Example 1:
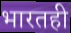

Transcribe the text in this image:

भारतही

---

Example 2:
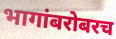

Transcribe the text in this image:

भागांबरोबरच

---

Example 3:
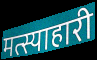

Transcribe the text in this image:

मत्स्याहारी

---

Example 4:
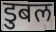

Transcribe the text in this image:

डुबल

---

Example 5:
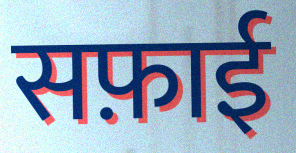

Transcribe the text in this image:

सफ़ाई